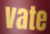
vate